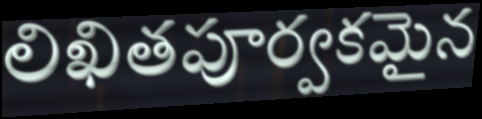
లిఖితపూర్వకమైన